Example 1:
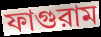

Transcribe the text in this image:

ফাগুরাম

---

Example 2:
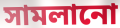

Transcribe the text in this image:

সামলানো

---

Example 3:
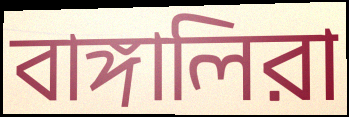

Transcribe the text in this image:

বাঙ্গালিরা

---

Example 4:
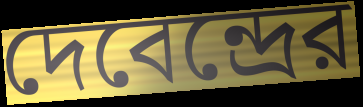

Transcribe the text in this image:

দেবেন্দ্রের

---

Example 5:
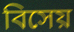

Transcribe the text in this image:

বিসেয়